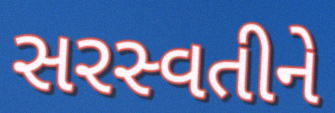
સરસ્વતીને